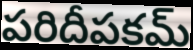
పరిదీపకమ్